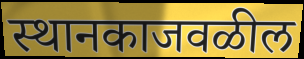
स्थानकाजवळील